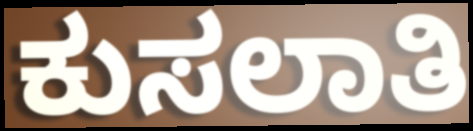
ಕುಸಲಾತಿ